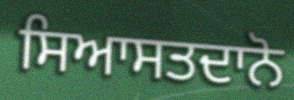
ਸਿਆਸਤਦਾਨੋ